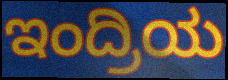
ಇಂದ್ರಿಯ